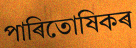
পাৰিতোষিকৰ